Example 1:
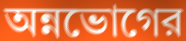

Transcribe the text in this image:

অন্নভোগের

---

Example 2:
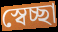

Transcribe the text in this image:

স্বেচ্ছা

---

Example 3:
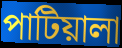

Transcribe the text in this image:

পাটিয়ালা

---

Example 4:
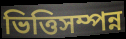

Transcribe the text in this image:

ভিত্তিসম্পন্ন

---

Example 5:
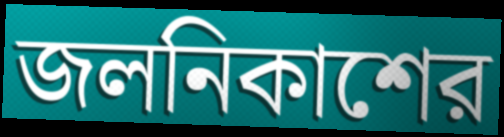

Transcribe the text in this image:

জলনিকাশের